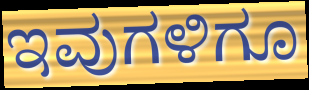
ಇವುಗಳಿಗೂ